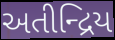
અતીન્દ્રિય